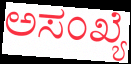
ಅಸಂಖ್ಯೆ